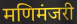
मणिमंजरी